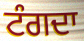
ਟੰਗਦਾ